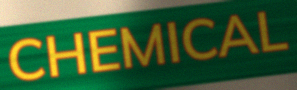
CHEMICAL